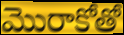
మొరాకోతో